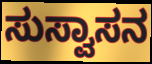
ಸುಸ್ವಾಸನ